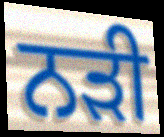
ਨੜੀ